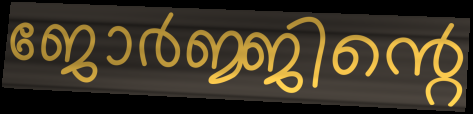
ജോർജ്ജിന്റെ